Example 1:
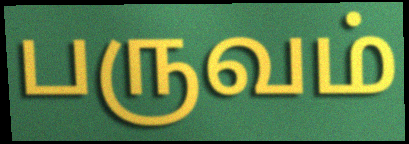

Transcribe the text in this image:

பருவம்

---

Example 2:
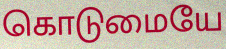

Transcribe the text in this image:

கொடுமையே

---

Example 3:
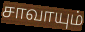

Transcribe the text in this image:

சாவாயும்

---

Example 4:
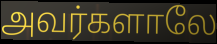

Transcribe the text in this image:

அவர்களாலே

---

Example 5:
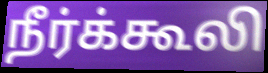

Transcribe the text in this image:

நீர்க்கூலி